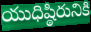
యుధిష్ఠిరునికి